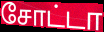
சோட்டா